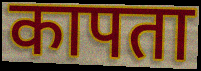
कापता